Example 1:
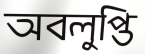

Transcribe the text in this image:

অবলুপ্তি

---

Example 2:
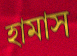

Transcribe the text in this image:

হামাস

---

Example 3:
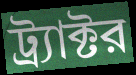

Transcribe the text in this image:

ট্র্যাক্টর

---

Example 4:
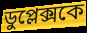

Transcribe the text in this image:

ডুপ্লেক্সকে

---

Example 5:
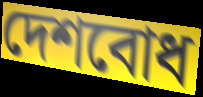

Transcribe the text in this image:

দেশবোধ